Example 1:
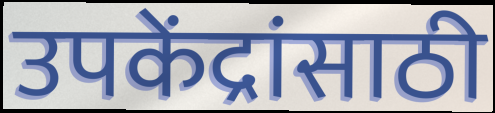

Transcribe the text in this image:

उपकेंद्रांसाठी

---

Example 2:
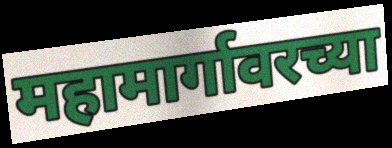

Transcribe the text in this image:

महामार्गावरच्या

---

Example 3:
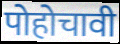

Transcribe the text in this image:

पोहोचावी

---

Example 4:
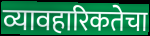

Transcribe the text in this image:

व्यावहारिकतेचा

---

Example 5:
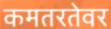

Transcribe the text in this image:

कमतरतेवर